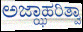
ಅಜ್ಝಾಹರಿತ್ವಾ